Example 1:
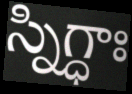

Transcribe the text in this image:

స్నిగ్ధాః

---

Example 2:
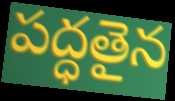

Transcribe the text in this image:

పద్ధతైన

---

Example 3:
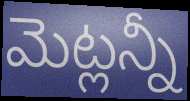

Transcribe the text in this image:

మెట్లన్నీ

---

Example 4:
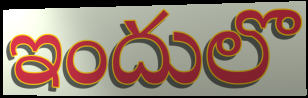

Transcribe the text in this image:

ఇందులొ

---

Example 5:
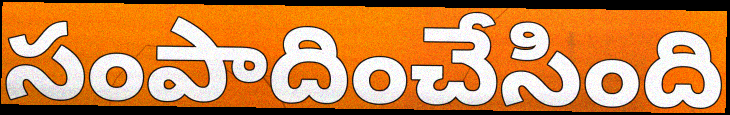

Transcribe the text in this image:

సంపాదించేసింది